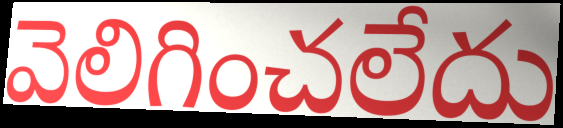
వెలిగించలేదు